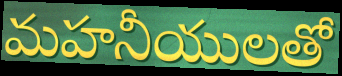
మహనీయులతో